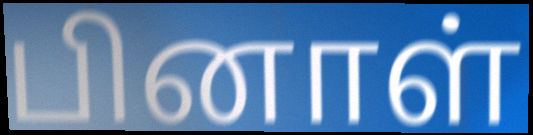
பினாள்